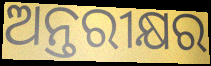
ଅନ୍ତରୀକ୍ଷର